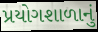
પ્રયોગશાળાનું